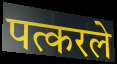
पत्करले